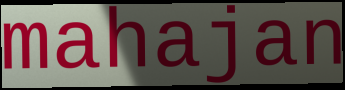
mahajan